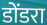
डोंडरा